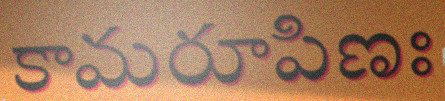
కామరూపిణః